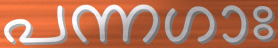
പന്നഗാഃ